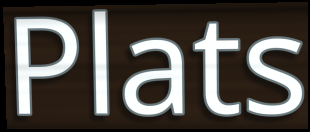
Plats